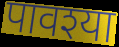
पावश्या